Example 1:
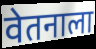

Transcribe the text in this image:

वेतनाला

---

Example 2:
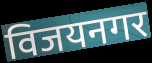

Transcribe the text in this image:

विजयनगर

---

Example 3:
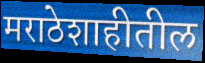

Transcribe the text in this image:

मराठेशाहीतील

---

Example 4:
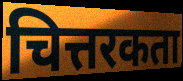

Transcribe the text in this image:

चित्तरकता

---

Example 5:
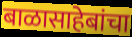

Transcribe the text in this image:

बाळासाहेबांचा